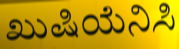
ಖುಷಿಯೆನಿಸಿ